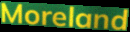
Moreland